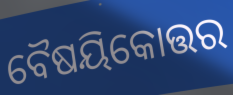
ବୈଷୟିକୋତ୍ତର